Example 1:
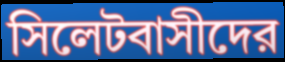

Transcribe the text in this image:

সিলেটবাসীদের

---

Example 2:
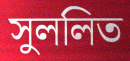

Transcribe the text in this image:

সুললিত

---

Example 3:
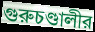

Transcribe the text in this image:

গুরুচণ্ডালীর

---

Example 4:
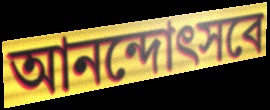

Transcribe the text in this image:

আনন্দোৎসবে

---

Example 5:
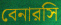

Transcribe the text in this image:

বেনারসি